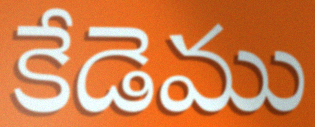
కేడెము